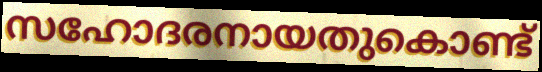
സഹോദരനായതുകൊണ്ട്